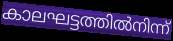
കാലഘട്ടത്തിൽനിന്ന്